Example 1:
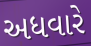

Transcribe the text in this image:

અધવારે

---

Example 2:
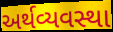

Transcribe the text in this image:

અર્થવ્યવસ્થા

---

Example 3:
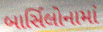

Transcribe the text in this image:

બાર્સિલોનામાં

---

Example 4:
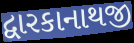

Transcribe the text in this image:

દ્વારકાનાથજી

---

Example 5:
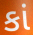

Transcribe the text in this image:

કાં